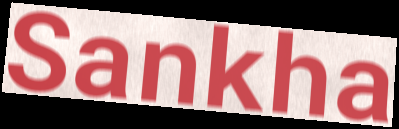
Sankha